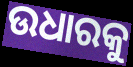
ଉଧାରକୁ